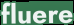
fluere